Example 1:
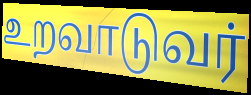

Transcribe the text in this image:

உறவாடுவர்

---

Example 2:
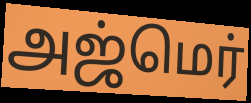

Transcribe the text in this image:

அஜ்மெர்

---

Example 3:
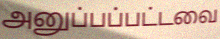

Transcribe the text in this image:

அனுப்பப்பட்டவை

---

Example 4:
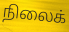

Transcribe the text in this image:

நிலைக்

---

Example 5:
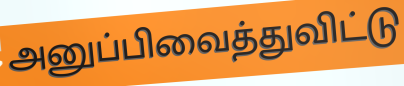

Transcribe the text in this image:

அனுப்பிவைத்துவிட்டு